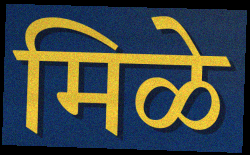
मिळे